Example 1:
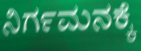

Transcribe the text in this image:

ನಿರ್ಗಮನಕ್ಕೆ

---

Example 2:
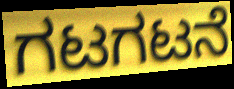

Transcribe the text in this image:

ಗಟಗಟನೆ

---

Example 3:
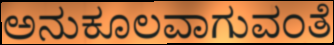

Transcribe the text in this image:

ಅನುಕೂಲವಾಗುವಂತೆ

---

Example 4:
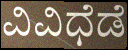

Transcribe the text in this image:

ವಿವಿಧೆಡೆ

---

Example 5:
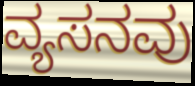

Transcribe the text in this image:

ವ್ಯಸನವು